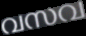
വസവ